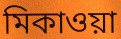
মিকাওয়া